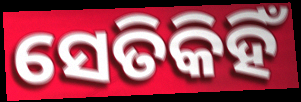
ସେତିକିହିଁ